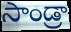
సాండ్రా